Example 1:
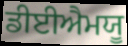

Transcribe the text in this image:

ਡੀਈਐਮਯੂ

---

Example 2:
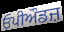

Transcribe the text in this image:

ਓਪੀਔਡਜ਼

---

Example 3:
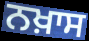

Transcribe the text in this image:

ਨਖ਼ਾਸ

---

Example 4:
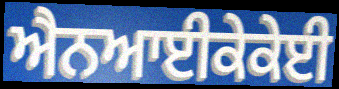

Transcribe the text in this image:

ਐਨਆਈਕੇਕੇਈ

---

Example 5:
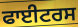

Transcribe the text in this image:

ਫਾਈਟਰਸ